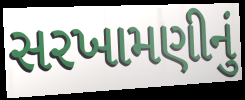
સરખામણીનું